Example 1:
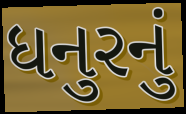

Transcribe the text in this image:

ધનુરનું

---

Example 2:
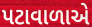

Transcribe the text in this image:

પટાવાળાએ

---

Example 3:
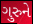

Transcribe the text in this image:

ગુરુને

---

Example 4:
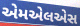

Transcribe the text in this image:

એમએલએસ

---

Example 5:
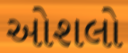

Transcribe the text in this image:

ઓશલો